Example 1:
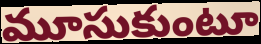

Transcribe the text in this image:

మూసుకుంటూ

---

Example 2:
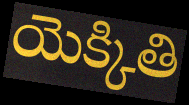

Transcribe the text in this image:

యెక్కితి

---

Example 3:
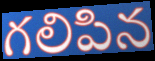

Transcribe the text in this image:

గలిపిన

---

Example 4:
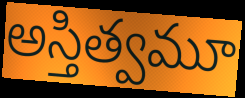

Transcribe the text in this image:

అస్తిత్వమూ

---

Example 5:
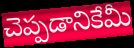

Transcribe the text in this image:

చెప్పడానికేమీ